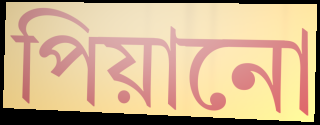
পিয়ানো